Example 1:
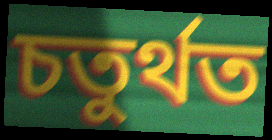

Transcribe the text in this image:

চতুর্থত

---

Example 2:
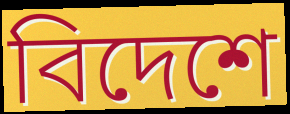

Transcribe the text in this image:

বিদেশে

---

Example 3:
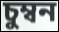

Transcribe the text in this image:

চুম্বন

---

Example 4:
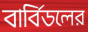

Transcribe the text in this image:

বার্বিডলের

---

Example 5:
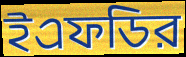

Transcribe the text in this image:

ইএফডির